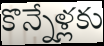
కొన్నేళ్లకు